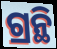
ଗ୍ରନ୍ଥି